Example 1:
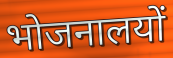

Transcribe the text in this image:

भोजनालयों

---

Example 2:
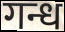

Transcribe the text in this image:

गन्ध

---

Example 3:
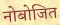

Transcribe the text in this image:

नोबोजित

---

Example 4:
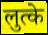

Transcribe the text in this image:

लुत्के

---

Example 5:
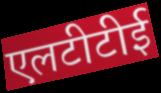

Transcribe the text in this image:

एलटीटीई